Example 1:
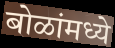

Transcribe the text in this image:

बोळांमध्ये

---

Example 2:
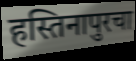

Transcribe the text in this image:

हस्तिनापुरचा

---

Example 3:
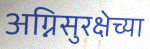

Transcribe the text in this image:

अग्निसुरक्षेच्या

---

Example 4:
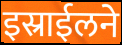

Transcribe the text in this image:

इस्राईलने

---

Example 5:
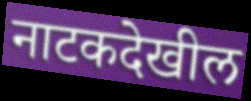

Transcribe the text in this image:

नाटकदेखील